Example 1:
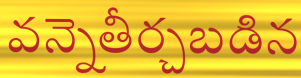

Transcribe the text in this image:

వన్నెతీర్చబడిన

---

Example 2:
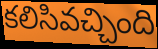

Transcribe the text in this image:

కలిసివచ్చింది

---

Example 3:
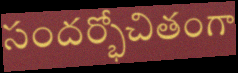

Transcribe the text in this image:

సందర్భోచితంగా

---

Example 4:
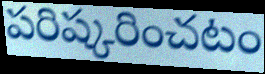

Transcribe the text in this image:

పరిష్కరించటం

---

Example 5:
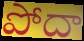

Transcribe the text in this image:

పోదా